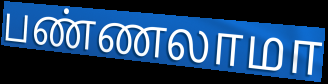
பண்ணலாமா